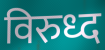
विरुध्द